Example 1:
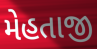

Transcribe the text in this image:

મેહતાજી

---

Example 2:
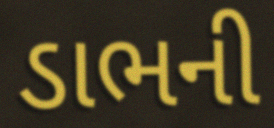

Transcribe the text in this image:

ડાભની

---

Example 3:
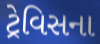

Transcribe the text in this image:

ટ્રેવિસના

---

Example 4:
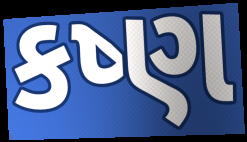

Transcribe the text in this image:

કષ્ણ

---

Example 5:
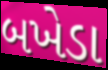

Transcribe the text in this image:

બખેડા